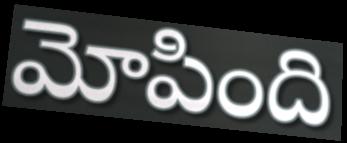
మోపింది